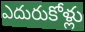
ఎదురుకోళ్లు